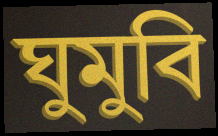
ঘুমুবি